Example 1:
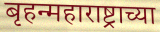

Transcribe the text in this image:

बृहन्महाराष्ट्राच्या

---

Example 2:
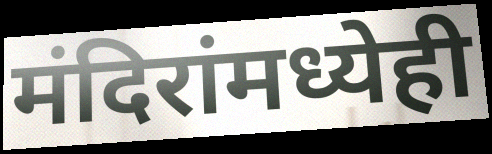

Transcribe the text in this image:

मंदिरांमध्येही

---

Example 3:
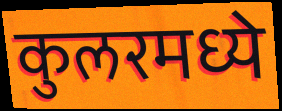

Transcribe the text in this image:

कुलरमध्ये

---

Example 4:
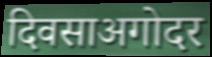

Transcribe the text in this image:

दिवसाअगोदर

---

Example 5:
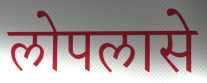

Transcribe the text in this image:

लोपलासे